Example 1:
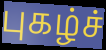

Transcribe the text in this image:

புகழ்ச்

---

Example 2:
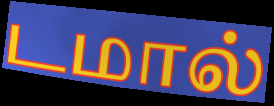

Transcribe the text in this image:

டமால்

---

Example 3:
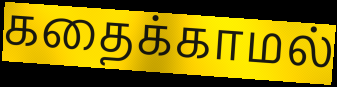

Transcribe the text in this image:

கதைக்காமல்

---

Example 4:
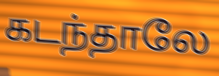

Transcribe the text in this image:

கடந்தாலே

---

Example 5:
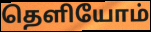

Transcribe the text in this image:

தெளியோம்